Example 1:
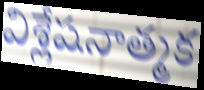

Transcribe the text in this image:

విశ్లేషనాత్మక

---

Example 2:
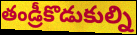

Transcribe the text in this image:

తండ్రీకొడుకుల్ని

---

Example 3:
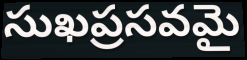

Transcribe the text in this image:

సుఖప్రసవమై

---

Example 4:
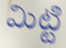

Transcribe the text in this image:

మిట్టి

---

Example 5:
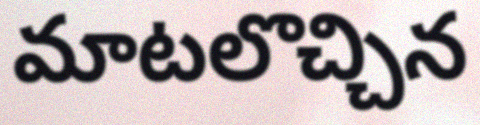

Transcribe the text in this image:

మాటలొచ్చిన